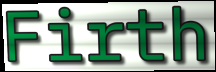
Firth